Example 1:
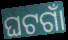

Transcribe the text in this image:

ଘଟଗାଁ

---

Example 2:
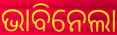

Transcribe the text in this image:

ଭାବିନେଲା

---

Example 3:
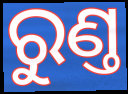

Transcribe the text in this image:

ରୁଣ୍ତ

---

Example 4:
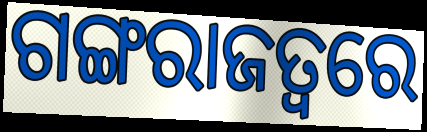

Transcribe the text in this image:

ଗଙ୍ଗରାଜତ୍ୱରେ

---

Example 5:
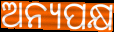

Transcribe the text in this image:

ଅନ୍ୟପକ୍ଷ